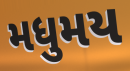
મધુમય